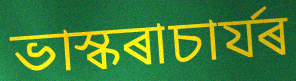
ভাস্কৰাচাৰ্যৰ